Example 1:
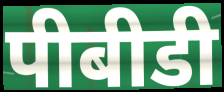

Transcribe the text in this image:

पीबीडी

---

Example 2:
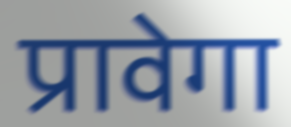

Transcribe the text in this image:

प्रावेगा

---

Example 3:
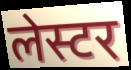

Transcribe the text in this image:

लेस्टर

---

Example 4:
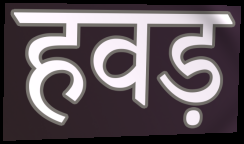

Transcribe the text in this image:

हवड़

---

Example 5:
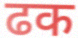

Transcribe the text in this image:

ढक